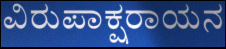
ವಿರುಪಾಕ್ಷರಾಯನ